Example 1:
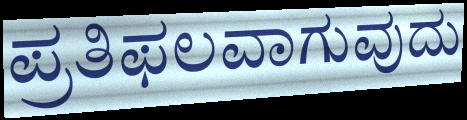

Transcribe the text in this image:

ಪ್ರತಿಫಲವಾಗುವುದು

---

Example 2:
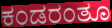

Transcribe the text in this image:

ಕಂಡರಂತೂ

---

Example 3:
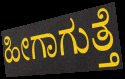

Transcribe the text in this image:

ಹೀಗಾಗುತ್ತೆ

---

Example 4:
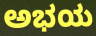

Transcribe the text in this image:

ಅಭಯ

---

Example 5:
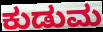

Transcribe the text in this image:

ಕುಡುಮ